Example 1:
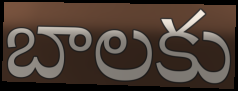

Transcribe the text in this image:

బాలకు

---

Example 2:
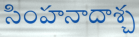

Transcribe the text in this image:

సింహనాదాశ్చ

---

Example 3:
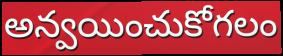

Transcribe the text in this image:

అన్వయించుకోగలం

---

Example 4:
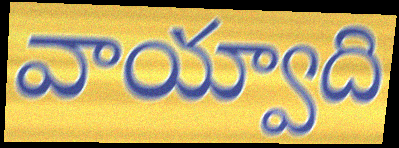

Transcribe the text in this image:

వాయ్వాది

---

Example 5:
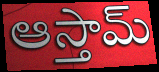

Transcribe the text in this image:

ఆస్తామ్